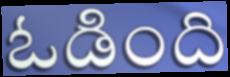
ఓడింది